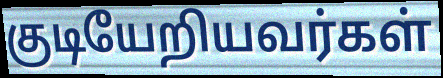
குடியேறியவர்கள்